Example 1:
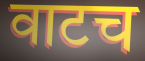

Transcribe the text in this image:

वाटच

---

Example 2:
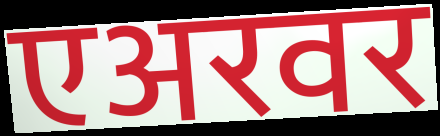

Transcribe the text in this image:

एअरवर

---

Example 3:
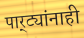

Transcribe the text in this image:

पार्ट्यांनाही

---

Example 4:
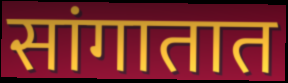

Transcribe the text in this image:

सांगातात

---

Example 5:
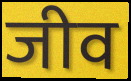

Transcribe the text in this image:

जीव